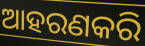
ଆହରଣକରି